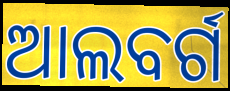
ଆଲବର୍ଗ